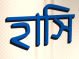
হাসি